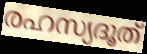
രഹസ്യദൂത്